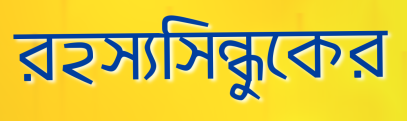
রহস্যসিন্ধুকের